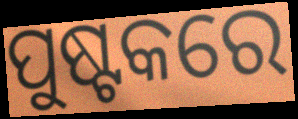
ପୁଷ୍ଟକରେ